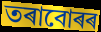
তৰাবোৰৰ